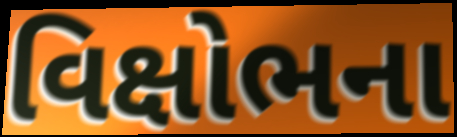
વિક્ષોભના